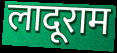
लादूराम